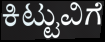
ಕಿಟ್ಟುವಿಗೆ